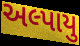
અલ્પાયુ